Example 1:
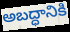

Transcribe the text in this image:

అబద్ధానికి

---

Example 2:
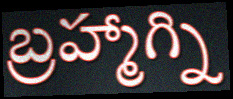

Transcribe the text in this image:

బ్రహ్మాగ్ని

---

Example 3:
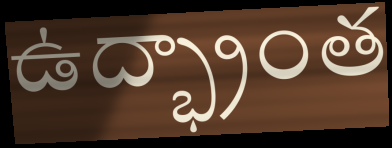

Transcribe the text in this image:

ఉద్భ్రాంత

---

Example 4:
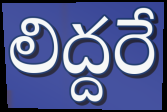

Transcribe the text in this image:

లిద్దరే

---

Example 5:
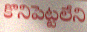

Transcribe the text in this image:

కొనిపెట్టలేని